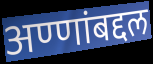
अण्णांबद्दल